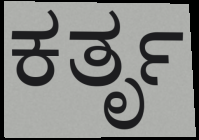
ಕರ್ತೃ